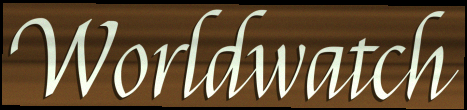
Worldwatch